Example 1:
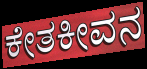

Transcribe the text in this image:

ಕೇತಕೀವನ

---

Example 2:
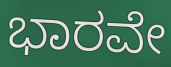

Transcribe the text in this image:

ಭಾರವೇ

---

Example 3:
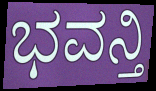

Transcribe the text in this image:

ಭವನ್ತಿ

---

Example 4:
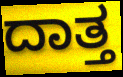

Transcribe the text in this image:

ದಾತ್ತ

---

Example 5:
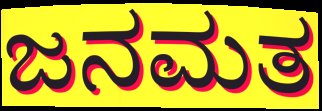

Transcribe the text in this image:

ಜನಮತ